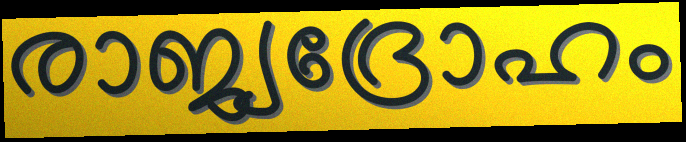
രാജ്യദ്രോഹം